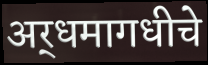
अर्धमागधीचे